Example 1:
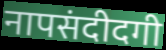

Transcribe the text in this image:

नापसंदीदगी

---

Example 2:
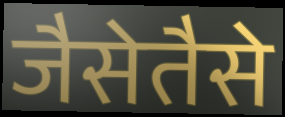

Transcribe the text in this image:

जैसेतैसे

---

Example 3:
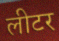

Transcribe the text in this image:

लीटर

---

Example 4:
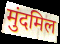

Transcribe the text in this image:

मुंदमिल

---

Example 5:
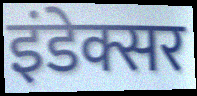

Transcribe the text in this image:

इंडेक्सर